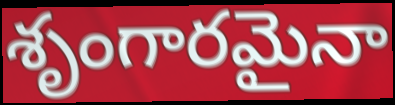
శృంగారమైనా